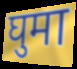
घुमा